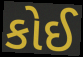
કોઈ